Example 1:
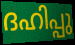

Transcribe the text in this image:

ദഹിപ്പു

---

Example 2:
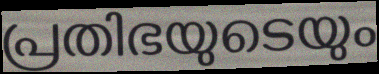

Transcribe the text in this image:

പ്രതിഭയുടെയും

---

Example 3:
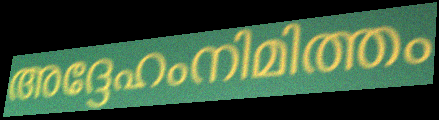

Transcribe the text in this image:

അദ്ദേഹംനിമിത്തം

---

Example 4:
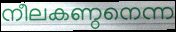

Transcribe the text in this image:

നീലകണ്ഠനെന്ന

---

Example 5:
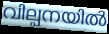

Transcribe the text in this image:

വില്പനയിൽ